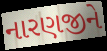
નારણજીને